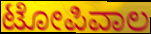
ಟೋಪಿವಾಲ